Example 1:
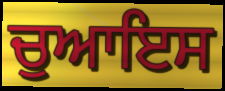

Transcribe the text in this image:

ਚੁਆਇਸ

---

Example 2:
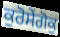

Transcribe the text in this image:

ਕੁਰੋਸੇਂਗੋਕੁ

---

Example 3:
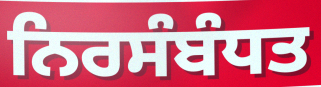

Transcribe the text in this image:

ਨਿਰਸੰਬੰਧਤ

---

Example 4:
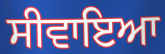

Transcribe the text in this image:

ਸੀਵਾਇਆ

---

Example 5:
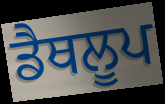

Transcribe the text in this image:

ਡੈਥਲੂਪ